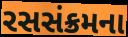
રસસંક્રમના